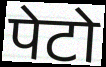
पेटो